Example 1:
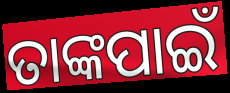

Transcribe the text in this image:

ତାଙ୍କପାଇଁ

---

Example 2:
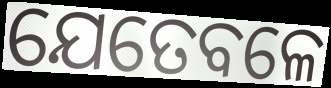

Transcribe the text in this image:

ଯେତେବଳେ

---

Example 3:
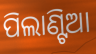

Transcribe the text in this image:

ପିଲାଣ୍ଟିଆ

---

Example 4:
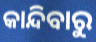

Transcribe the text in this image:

କାନ୍ଦିବାରୁ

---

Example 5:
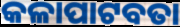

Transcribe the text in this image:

କଳାପାଟବତା